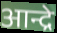
आन्द्रे